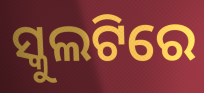
ସ୍କୁଲଟିରେ